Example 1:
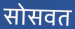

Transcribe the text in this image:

सोसवत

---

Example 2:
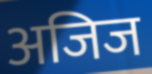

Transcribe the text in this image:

अजिज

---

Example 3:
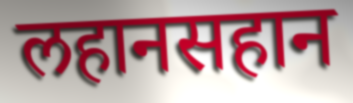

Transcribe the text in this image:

लहानसहान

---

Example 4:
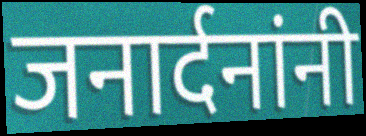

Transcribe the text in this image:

जनार्दनांनी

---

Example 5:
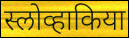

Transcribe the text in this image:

स्लोव्हाकिया